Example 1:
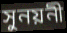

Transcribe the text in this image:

সুনয়নী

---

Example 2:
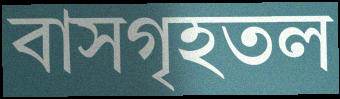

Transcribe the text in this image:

বাসগৃহতল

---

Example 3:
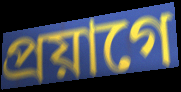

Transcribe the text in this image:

প্রয়াগে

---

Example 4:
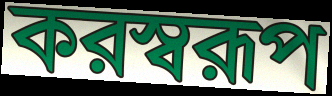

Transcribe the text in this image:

করস্বরূপ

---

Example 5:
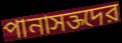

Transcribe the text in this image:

পানাসক্তদের